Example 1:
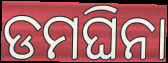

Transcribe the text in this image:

ଡମଘିନା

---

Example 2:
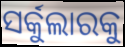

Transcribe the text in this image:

ସର୍କୁଲାରକୁ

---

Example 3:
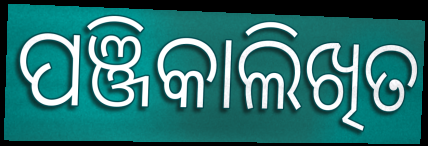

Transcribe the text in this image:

ପଞ୍ଜିକାଲିଖିତ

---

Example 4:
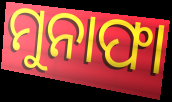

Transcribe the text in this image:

ମୁନାଫା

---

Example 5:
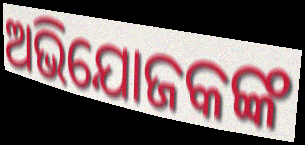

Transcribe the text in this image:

ଅଭିଯୋଜକଙ୍କ